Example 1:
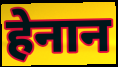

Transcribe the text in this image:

हेनान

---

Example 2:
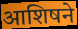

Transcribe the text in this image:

आशिषने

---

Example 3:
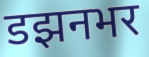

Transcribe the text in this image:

डझनभर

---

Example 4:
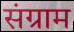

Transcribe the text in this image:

संग्राम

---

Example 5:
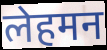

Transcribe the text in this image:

लेहमन